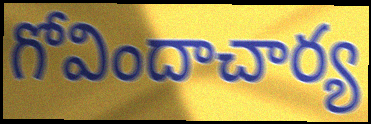
గోవిందాచార్య